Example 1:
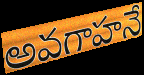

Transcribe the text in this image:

అవగాహనే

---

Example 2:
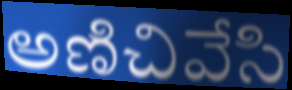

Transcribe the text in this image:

అణిచివేసి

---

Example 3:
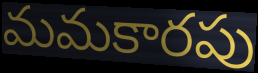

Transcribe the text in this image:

మమకారపు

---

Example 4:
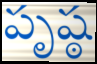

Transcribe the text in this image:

పృష్ఠ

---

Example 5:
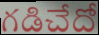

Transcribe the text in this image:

గడిచేదో